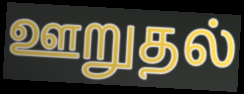
ஊறுதல்